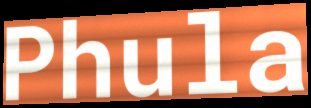
Phula